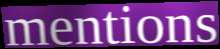
mentions